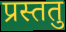
प्रस्ततु